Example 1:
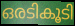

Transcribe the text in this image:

ഒരടികൂടി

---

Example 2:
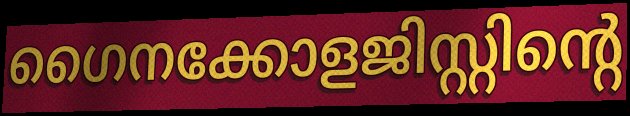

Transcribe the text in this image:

ഗൈനക്കോളജിസ്റ്റിന്റെ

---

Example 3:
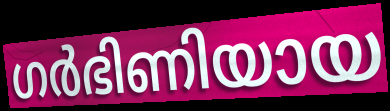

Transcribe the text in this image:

ഗർഭിണിയായ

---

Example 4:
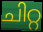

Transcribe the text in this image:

ചിറ്റ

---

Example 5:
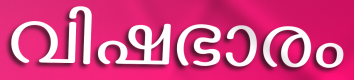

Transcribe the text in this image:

വിഷഭാരം